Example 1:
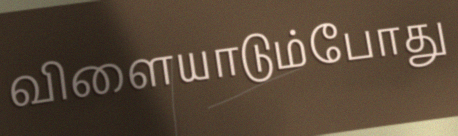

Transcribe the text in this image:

விளையாடும்போது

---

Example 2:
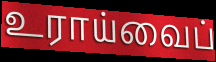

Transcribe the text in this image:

உராய்வைப்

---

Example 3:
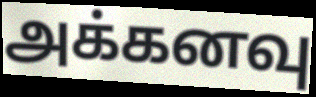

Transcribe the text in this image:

அக்கனவு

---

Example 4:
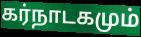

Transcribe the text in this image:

கர்நாடகமும்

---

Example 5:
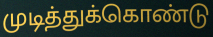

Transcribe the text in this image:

முடித்துக்கொண்டு